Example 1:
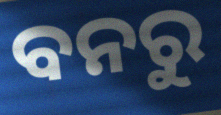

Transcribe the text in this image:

ବନରୁ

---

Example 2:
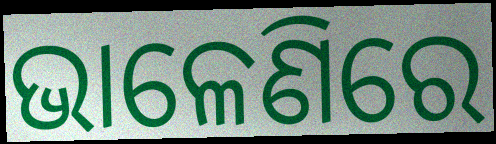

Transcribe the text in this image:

ଭାଳେଣିରେ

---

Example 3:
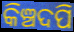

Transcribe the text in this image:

କିଞ୍ଚଦପି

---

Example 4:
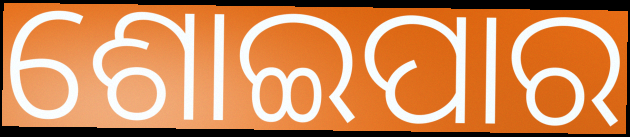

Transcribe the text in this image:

ଶୋଇପାର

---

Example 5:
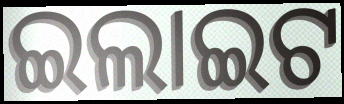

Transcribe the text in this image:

ଇଲାଇଟ